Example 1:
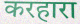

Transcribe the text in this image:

करहारा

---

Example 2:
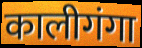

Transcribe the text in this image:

कालीगंगा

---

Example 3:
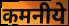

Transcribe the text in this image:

कमनीये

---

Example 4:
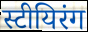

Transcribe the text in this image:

स्टीयिरंग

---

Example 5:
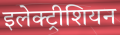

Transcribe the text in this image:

इलेक्‍ट्रीशियन